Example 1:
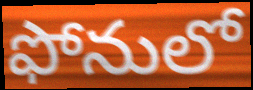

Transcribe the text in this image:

ఫోనులో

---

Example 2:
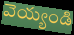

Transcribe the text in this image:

వెయ్యండి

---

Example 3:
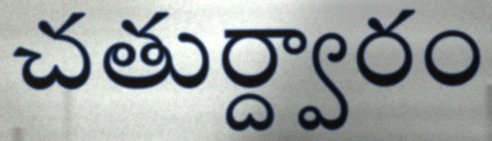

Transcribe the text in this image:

చతుర్ద్వారం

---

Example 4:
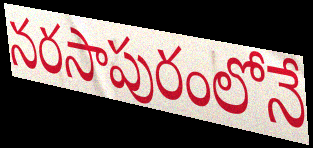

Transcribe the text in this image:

నరసాపురంలోనే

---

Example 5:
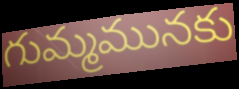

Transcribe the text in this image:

గుమ్మమునకు